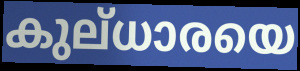
കുല്ധാരയെ